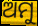
ଅମୁ